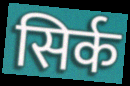
सिर्क